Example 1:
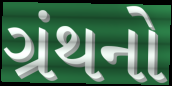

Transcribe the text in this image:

ગ્રંથનો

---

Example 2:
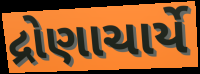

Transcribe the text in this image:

દ્રોણાચાર્યે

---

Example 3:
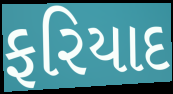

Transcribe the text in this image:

ફરિયાદ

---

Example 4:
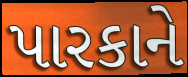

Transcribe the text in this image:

પારકાને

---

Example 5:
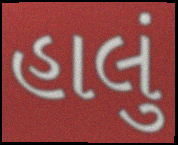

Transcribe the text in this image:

હાલું